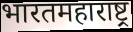
भारतमहाराष्ट्र